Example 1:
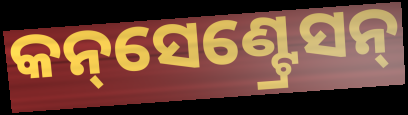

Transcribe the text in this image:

କନ୍‌ସେଣ୍ଟ୍ରେସନ୍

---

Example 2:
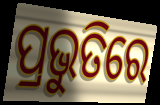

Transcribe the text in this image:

ପ୍ରଭୁତିରେ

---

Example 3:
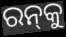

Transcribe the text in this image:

ରନ୍‌କୁ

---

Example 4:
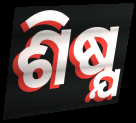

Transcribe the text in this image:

ଶିଷ୍ଯ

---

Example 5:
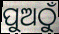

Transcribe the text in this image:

ପୁଅଠୁଁ